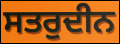
ਸਤਰੁਦੀਨ